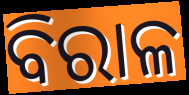
ବିରାଳ